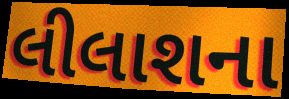
લીલાશના